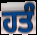
ਹਤੰ